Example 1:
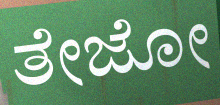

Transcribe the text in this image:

ತೇಜೋ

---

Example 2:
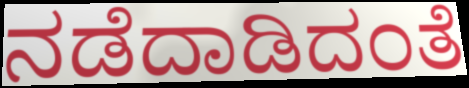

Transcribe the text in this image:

ನಡೆದಾಡಿದಂತೆ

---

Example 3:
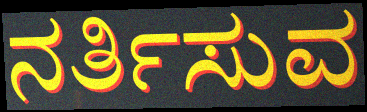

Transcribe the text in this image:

ನರ್ತಿಸುವ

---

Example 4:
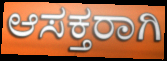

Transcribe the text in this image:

ಆಸಕ್ತರಾಗಿ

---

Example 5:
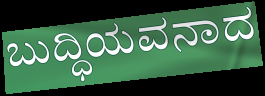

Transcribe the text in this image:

ಬುದ್ಧಿಯವನಾದ